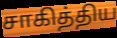
சாகித்திய